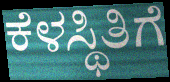
ಕೆಳಸ್ಥಿತಿಗೆ